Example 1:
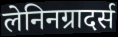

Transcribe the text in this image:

लेनिनग्रादर्स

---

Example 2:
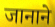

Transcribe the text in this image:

जानाने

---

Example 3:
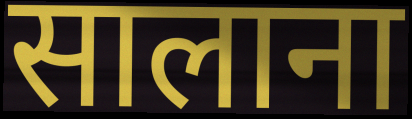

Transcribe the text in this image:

सालाना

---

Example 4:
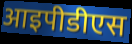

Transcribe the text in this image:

आइपीडीएस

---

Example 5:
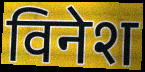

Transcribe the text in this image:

विनेश